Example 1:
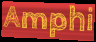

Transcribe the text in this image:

Amphi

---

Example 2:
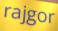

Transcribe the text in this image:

rajgor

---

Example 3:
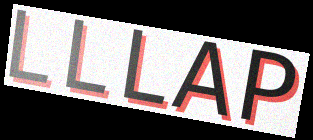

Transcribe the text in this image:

LLLAP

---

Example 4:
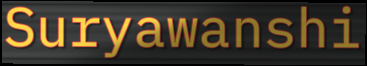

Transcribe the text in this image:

Suryawanshi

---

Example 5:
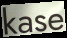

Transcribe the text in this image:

kase